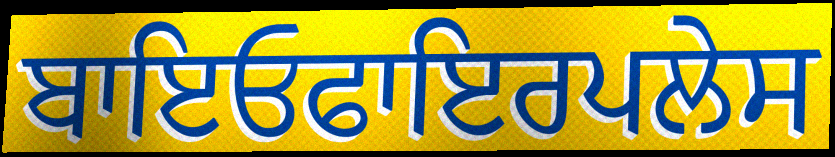
ਬਾਇਓਫਾਇਰਪਲੇਸ